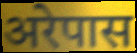
अरेपास